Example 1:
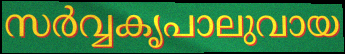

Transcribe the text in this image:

സർവ്വകൃപാലുവായ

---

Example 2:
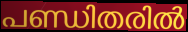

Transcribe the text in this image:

പണ്ഡിതരിൽ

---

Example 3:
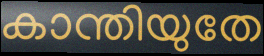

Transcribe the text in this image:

കാന്തിയുതേ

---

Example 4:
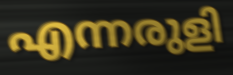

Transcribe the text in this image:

എന്നരുളി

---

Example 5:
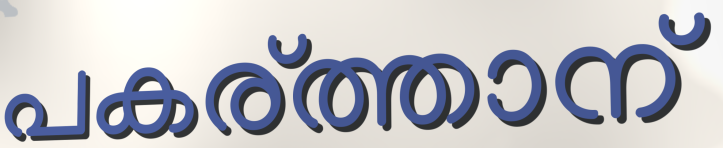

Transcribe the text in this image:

പകര്ത്താന്